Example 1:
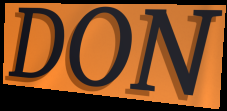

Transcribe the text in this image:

DON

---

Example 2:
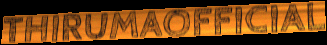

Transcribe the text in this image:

THIRUMAOFFICIAL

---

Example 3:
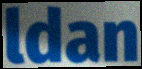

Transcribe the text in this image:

ldan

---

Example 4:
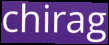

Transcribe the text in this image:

chirag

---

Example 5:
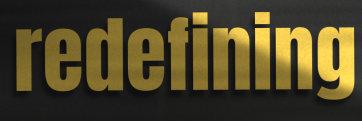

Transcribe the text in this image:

redefining